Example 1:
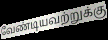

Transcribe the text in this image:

வேண்டியவற்றுக்கு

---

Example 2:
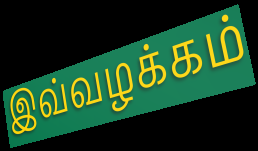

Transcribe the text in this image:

இவ்வழக்கம்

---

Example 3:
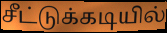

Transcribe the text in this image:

சீட்டுக்கடியில்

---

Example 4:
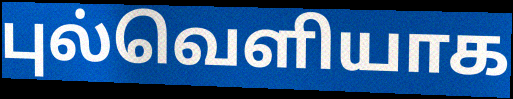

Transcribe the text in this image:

புல்வெளியாக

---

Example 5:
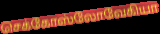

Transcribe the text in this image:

செக்கோஸ்லோவேகியா